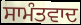
ਸਾਮੰਤਵਾਦ